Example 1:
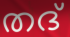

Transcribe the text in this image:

തദ്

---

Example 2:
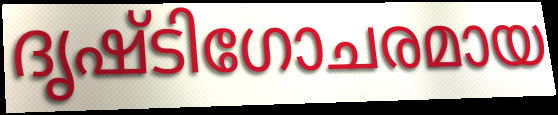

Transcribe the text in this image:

ദൃഷ്ടിഗോചരമായ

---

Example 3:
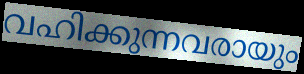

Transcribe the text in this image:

വഹിക്കുന്നവരായും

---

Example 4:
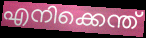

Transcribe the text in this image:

എനിക്കെന്ത്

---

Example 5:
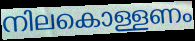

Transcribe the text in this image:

നിലകൊള്ളണം